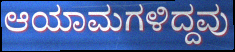
ಆಯಾಮಗಳಿದ್ದವು